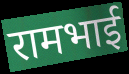
रामभाई